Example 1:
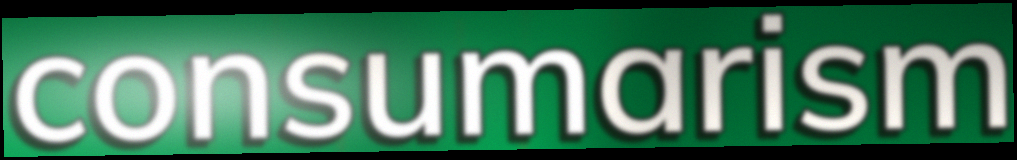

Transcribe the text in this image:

consumarism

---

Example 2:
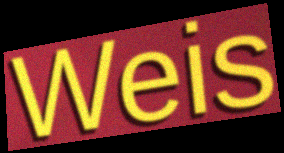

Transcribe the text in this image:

Weis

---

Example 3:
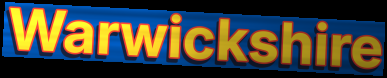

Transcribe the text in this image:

Warwickshire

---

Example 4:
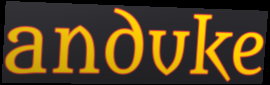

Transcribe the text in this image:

anduke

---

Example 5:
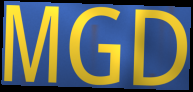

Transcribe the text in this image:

MGD